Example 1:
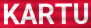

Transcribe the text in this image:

KARTU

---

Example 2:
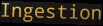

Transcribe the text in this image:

Ingestion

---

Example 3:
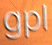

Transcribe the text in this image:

gpl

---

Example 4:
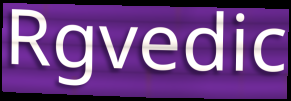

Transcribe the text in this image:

Rgvedic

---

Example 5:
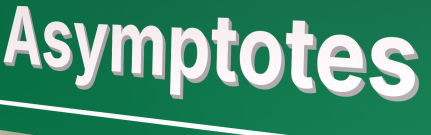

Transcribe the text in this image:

Asymptotes